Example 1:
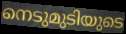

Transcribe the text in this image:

നെടുമുടിയുടെ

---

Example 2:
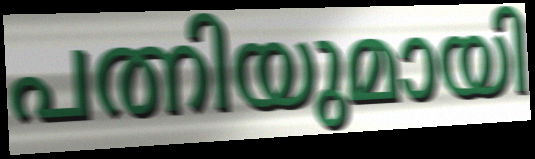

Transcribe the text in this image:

പത്നിയുമായി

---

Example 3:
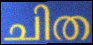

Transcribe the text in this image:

ചിത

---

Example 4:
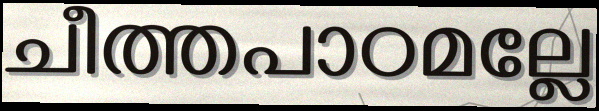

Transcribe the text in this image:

ചീത്തപാഠമല്ലേ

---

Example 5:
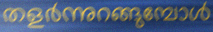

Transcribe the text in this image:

തളർന്നുറങ്ങുമ്പോൾ